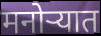
मनोऱ्यात